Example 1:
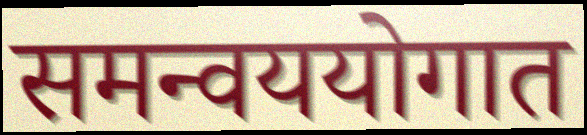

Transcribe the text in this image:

समन्वययोगात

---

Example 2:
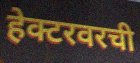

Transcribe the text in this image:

हेक्टरवरची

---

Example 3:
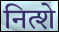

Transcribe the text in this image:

नित्शे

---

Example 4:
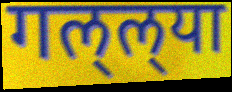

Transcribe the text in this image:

गल्ल्या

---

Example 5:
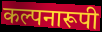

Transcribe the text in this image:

कल्पनारूपी